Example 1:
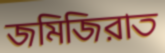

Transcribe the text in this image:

জমিজিরাত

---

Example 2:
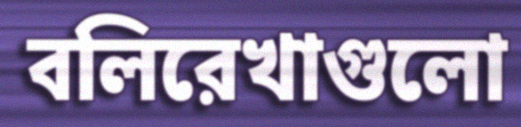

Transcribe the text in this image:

বলিরেখাগুলো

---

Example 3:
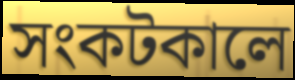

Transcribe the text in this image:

সংকটকালে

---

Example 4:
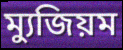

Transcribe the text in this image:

ম্যুজিয়ম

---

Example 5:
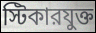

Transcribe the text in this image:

স্টিকারযুক্ত